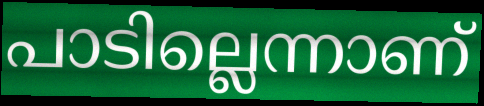
പാടില്ലെന്നാണ്